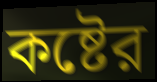
কষ্টের